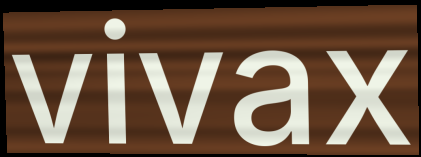
vivax